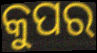
କୁପର